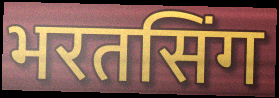
भरतसिंग